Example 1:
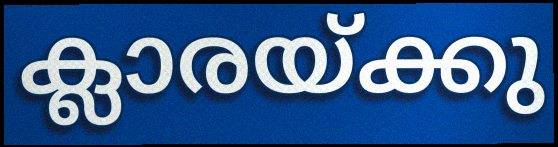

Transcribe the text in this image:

ക്ലാരയ്ക്കു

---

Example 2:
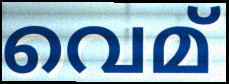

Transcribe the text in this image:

വെമ്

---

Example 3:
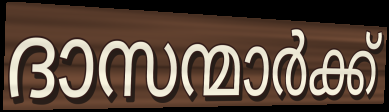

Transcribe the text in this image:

ദാസന്മാർക്ക്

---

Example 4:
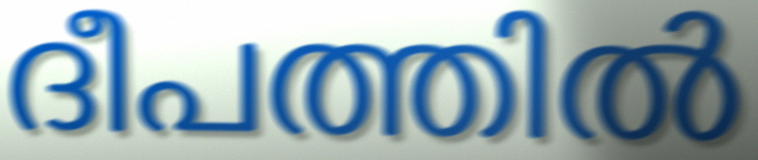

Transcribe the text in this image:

ദീപത്തിൽ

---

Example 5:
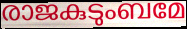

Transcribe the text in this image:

രാജകുടുംബമേ